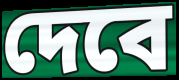
দেবে